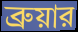
ব্রুয়ার